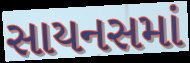
સાયનસમાં